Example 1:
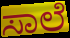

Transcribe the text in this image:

ಸಾಲೆ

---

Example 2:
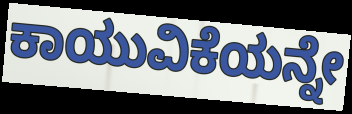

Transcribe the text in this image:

ಕಾಯುವಿಕೆಯನ್ನೇ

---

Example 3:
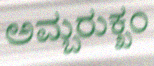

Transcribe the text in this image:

ಅಮ್ಬರುಕ್ಖಂ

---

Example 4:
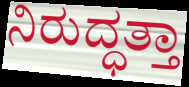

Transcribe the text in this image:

ನಿರುದ್ಧತ್ತಾ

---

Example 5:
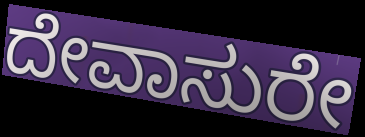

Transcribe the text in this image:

ದೇವಾಸುರೇ